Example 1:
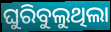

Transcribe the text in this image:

ଘୁରିବୁଲୁଥିଲା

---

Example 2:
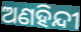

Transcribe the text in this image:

ଅଣହିନ୍ଦୀ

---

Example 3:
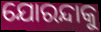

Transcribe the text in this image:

ଯୋରନ୍ଦାକୁ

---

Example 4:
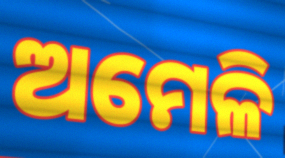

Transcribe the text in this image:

ଅମେଳି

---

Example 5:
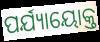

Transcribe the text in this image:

ପର୍ଯ୍ୟାୟୋକ୍ତ